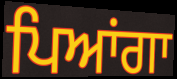
ਪਿਆਂਗਾ